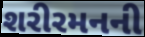
શરીરમનની